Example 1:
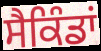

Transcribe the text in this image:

ਸੈਕਿੰਡਾਂ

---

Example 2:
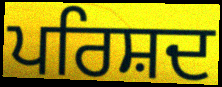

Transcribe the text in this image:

ਪਰਿਸ਼ਦ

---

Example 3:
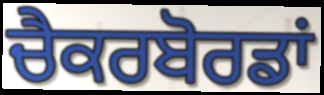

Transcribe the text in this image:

ਚੈਕਰਬੋਰਡਾਂ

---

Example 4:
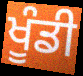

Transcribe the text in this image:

ਖੂੰਡੀ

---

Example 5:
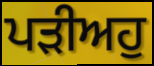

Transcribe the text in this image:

ਪੜੀਅਹੁ